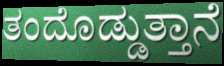
ತಂದೊಡ್ಡುತ್ತಾನೆ